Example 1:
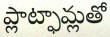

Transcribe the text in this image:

ప్లాట్ఫామ్లతో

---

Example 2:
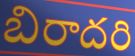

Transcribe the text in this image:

బిరాదరి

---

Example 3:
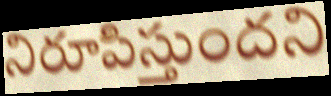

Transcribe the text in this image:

నిరూపిస్తుందని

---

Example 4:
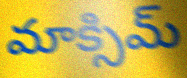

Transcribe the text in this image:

మాక్సిమ్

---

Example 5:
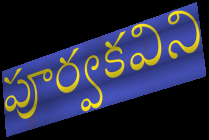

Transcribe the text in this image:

పూర్వకవిని